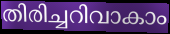
തിരിച്ചറിവാകാം